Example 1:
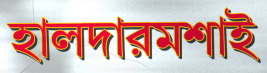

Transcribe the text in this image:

হালদারমশাই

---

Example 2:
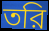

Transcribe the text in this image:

তরি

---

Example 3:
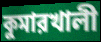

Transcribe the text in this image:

কুমারখালী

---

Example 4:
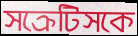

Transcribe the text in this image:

সক্রেটিসকে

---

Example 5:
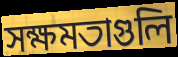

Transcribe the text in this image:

সক্ষমতাগুলি